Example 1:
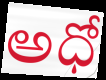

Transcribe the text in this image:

అధో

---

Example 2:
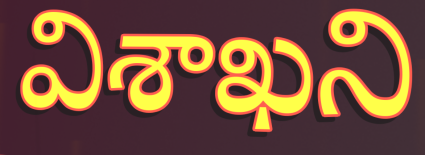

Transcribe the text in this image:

విశాఖని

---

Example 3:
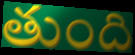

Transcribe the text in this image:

తుంది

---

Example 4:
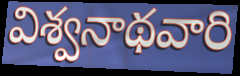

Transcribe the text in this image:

విశ్వనాథవారి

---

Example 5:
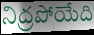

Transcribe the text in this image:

నిద్రపోయేది